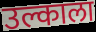
उल्काला